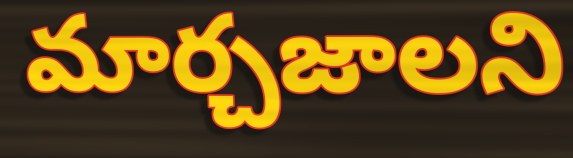
మార్చజాలని